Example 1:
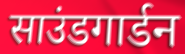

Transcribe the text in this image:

साउंडगार्डन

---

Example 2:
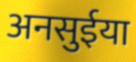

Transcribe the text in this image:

अनसुईया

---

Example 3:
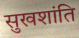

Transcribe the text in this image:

सुखशांति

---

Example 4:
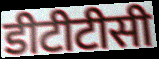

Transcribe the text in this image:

डीटीटीसी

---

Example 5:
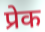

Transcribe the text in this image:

प्रेक